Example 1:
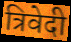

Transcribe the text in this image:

त्रिवेदी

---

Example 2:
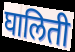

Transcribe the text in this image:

घालिती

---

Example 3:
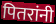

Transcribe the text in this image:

पितरांनी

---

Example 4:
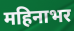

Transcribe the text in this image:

महिनाभर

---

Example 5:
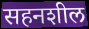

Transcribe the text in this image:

सहनशील